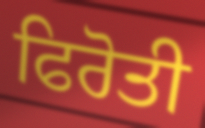
ਫਿਰੋਤੀ